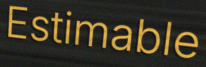
Estimable